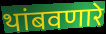
थांबवणारे